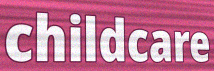
childcare